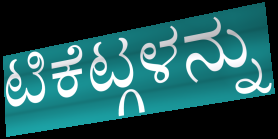
ಟಿಕೆಟ್ಗಳನ್ನು